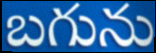
బగును